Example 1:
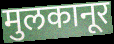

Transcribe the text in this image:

मुलकानूर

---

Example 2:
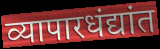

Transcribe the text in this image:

व्यापारधंद्यांत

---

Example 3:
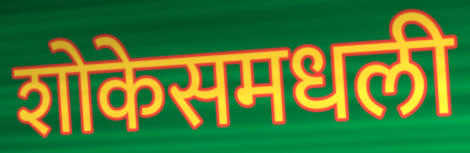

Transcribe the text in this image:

शोकेसमधली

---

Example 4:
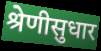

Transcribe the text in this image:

श्रेणीसुधार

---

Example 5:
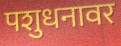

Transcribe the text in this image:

पशुधनावर